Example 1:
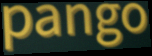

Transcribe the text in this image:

pango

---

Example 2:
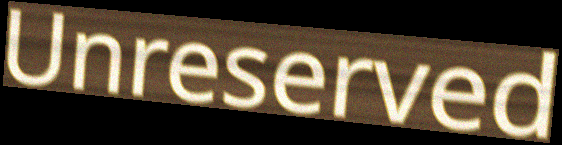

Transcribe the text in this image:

Unreserved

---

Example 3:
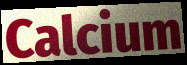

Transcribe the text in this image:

Calcium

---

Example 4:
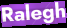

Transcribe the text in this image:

Ralegh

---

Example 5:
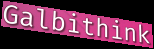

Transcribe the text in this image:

Galbithink